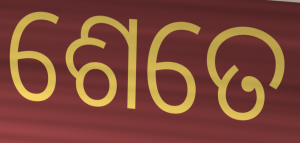
ଶେତେ